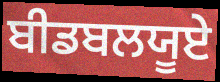
ਬੀਡਬਲਯੂਏ